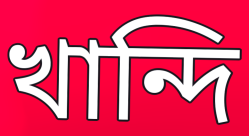
খান্দি